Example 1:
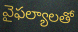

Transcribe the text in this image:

వైఫల్యాలతో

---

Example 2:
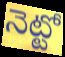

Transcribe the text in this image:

నెట్టో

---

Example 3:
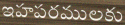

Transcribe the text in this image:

ఇహపరములకు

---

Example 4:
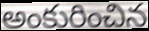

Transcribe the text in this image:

అంకురించిన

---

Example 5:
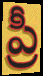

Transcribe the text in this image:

ప్రీ